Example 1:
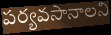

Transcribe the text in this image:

పర్యవసానాలని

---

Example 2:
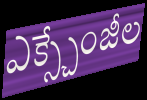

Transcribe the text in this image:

ఎక్స్చేంజీల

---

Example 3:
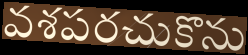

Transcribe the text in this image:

వశపరచుకొను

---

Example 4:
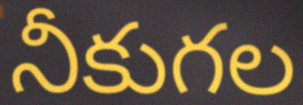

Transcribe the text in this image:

నీకుగల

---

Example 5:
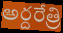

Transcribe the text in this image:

అర్దరేత్రి